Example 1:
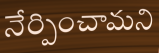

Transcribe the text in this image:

నేర్పించామని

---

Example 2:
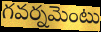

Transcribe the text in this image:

గవర్నమెంటు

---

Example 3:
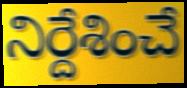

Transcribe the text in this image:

నిర్దేశించే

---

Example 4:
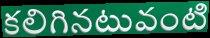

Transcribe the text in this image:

కలిగినటువంటి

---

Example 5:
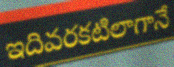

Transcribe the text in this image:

ఇదివరకటిలాగానే